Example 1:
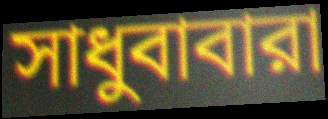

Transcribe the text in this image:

সাধুবাবারা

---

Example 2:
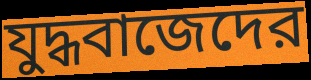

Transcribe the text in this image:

যুদ্ধবাজেদের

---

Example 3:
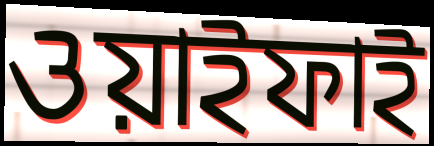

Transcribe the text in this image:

ওয়াইফাই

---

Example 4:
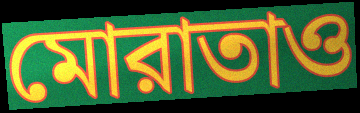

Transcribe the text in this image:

মোরাতাও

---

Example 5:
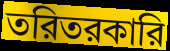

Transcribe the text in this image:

তরিতরকারি